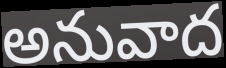
అనువాద